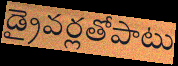
డ్రైవర్లతోపాటు